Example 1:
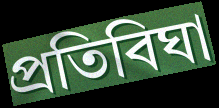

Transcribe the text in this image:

প্রতিবিঘা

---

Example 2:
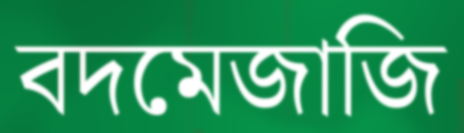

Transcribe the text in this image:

বদমেজাজি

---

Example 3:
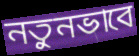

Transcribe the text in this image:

নতুনভাবে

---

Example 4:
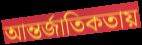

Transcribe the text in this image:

আন্তর্জাতিকতায়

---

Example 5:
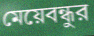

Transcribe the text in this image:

মেয়েবন্ধুর